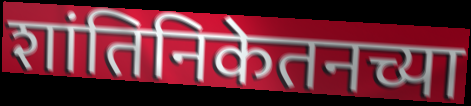
शांतिनिकेतनच्या